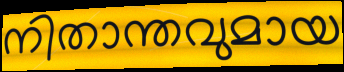
നിതാന്തവുമായ